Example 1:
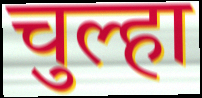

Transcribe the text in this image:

चुल्हा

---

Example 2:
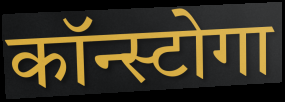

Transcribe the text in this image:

कॉन्स्टोगा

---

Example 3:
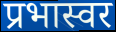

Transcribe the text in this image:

प्रभास्वर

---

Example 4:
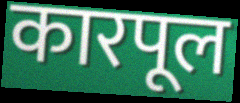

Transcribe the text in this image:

कारपूल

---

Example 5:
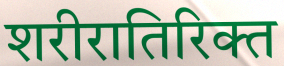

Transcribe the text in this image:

शरीरातिरिक्त